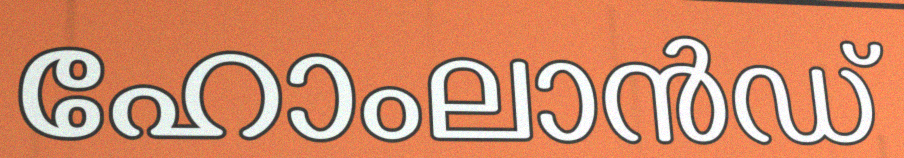
ഹോംലാൻഡ്